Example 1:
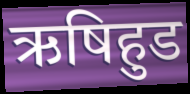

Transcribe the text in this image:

ऋषिहुड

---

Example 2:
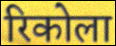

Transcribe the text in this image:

रिकोला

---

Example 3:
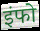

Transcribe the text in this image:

इंफो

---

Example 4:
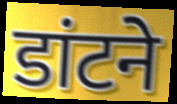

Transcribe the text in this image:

डांटने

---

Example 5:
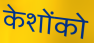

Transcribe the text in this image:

केशोंको